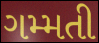
ગમ્મતી